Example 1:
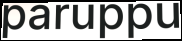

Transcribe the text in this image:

paruppu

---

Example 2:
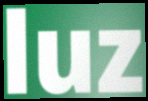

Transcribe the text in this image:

luz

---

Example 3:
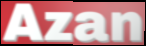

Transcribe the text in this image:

Azan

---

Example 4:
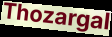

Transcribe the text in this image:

Thozargal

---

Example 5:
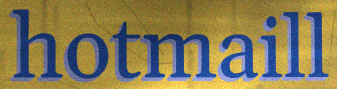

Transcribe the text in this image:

hotmaill